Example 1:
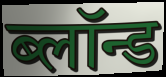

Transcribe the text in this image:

ब्लॉन्ड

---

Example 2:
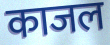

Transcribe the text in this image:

काजल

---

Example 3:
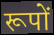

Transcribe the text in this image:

रूपों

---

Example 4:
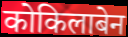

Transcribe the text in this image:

कोकिलाबेन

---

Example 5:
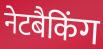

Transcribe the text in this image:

नेटबैकिंग